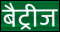
बैट्रीज